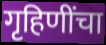
गृहिणींचा